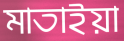
মাতাইয়া